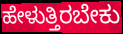
ಹೇಳುತ್ತಿರಬೇಕು